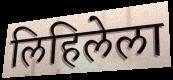
लिहिलेला